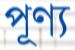
পূণ্য